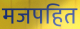
मजपहित